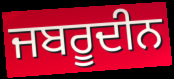
ਜਬਰੂਦੀਨ